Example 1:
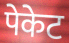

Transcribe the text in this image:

पेकेट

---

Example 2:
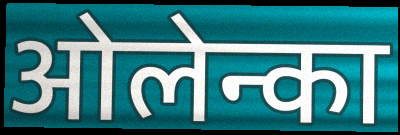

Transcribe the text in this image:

ओलेन्का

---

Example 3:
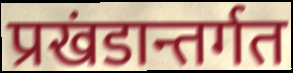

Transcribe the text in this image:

प्रखंडान्तर्गत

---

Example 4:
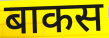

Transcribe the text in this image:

बाकस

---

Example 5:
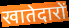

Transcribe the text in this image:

खातेदारों